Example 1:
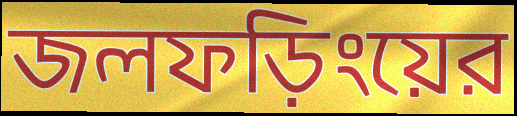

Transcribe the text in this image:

জলফড়িংয়ের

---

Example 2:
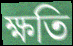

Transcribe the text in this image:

ক্ষতি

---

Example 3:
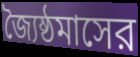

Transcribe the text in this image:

জ্যৈষ্ঠমাসের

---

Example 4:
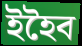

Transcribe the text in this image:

ইহৈব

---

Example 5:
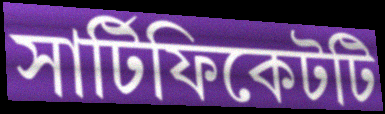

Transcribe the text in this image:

সার্টিফিকেটটি